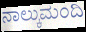
ನಾಲ್ಕುಮಂದಿ